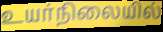
உயர்நிலையில்